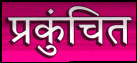
प्रकुंचित